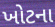
ખોટના